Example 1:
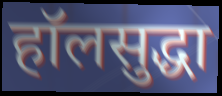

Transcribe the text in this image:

हॉलसुद्धा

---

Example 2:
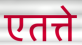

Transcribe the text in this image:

एतत्ते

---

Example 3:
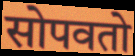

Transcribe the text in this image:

सोपवतो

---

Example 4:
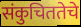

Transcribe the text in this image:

संकुचिततेचे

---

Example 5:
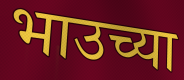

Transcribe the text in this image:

भाउच्या